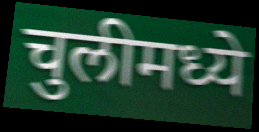
चुलीमध्ये